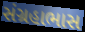
સંગ્રહાભાસ